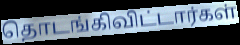
தொடங்கிவிட்டார்கள்